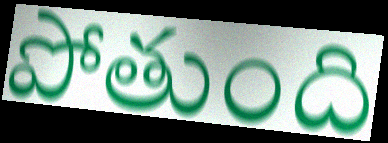
పోతుంది